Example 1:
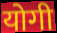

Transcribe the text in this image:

योगी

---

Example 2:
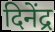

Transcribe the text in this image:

दिनेंद्र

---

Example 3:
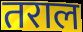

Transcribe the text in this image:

तराल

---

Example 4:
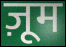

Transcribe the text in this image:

ज़ूम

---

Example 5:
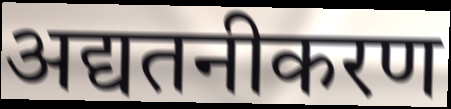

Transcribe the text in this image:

अद्यतनीकरण